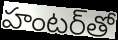
హంటర్‌తో